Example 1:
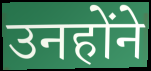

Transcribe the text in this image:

उनहोंने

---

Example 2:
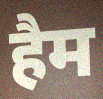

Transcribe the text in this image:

हैम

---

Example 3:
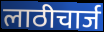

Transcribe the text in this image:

लाठीचार्ज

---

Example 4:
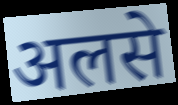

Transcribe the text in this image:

अलसे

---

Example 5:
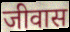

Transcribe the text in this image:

जीवास